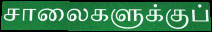
சாலைகளுக்குப்